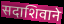
सदाशिवाने